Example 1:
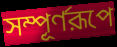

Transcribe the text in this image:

সম্পূর্ণরূপে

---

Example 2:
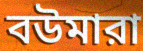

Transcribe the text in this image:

বউমারা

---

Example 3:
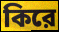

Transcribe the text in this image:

কিরে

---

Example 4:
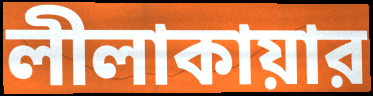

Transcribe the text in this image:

লীলাকায়ার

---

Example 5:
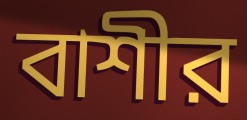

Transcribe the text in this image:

বাশীর